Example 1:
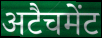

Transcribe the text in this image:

अटैचमेंट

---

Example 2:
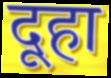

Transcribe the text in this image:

दूहा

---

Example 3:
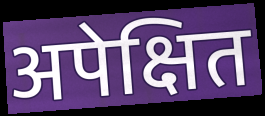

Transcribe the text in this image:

अपेक्षित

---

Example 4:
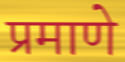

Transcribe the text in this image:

प्रमाणे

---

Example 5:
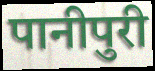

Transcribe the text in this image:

पानीपुरी